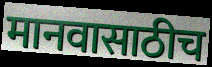
मानवासाठीच